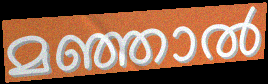
മഞ്ഞാൽ